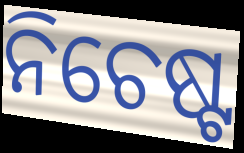
ନିଚେଷ୍ଟ